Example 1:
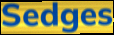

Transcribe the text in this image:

Sedges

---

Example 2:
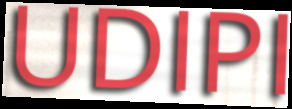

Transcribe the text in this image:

UDIPI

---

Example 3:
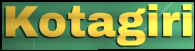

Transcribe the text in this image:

Kotagiri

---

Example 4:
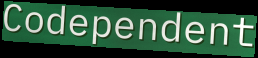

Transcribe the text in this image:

Codependent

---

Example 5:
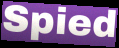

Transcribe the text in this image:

Spied